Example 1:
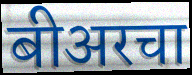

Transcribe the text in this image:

बीअरचा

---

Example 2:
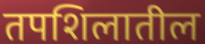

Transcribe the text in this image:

तपशिलातील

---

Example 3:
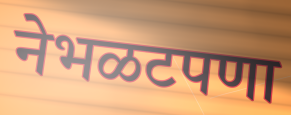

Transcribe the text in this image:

नेभळटपणा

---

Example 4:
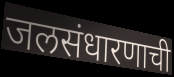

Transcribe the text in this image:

जलसंधारणाची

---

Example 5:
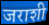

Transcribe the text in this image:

जराशी